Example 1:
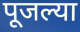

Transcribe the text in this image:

पूजल्या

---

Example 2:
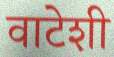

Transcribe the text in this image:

वाटेशी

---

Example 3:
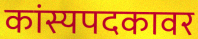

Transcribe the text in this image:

कांस्यपदकावर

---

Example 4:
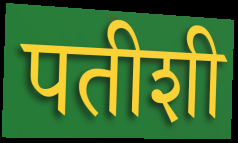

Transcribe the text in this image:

पतीशी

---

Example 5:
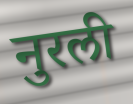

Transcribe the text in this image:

नुरली